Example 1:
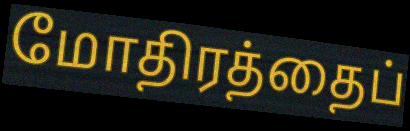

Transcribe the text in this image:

மோதிரத்தைப்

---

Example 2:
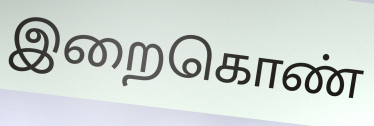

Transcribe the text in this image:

இறைகொண்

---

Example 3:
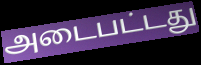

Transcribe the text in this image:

அடைபட்டது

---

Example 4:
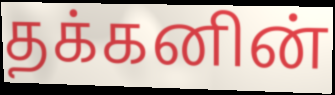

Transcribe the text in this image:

தக்கனின்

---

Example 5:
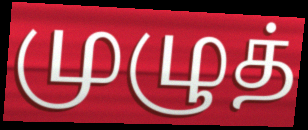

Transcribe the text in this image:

முழுத்